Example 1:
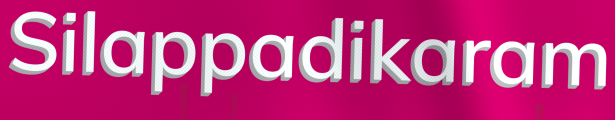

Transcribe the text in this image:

Silappadikaram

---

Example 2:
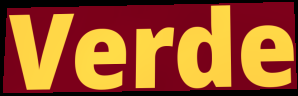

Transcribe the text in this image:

Verde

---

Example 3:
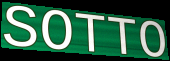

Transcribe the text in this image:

SOTTO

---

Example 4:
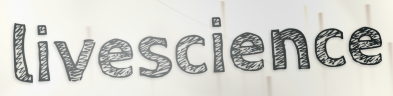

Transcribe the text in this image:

livescience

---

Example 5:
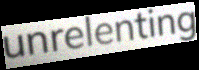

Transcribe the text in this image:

unrelenting